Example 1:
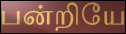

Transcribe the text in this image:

பன்றியே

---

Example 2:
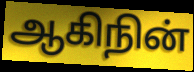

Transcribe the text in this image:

ஆகிநின்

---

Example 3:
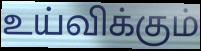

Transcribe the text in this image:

உய்விக்கும்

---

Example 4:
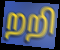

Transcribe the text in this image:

றறி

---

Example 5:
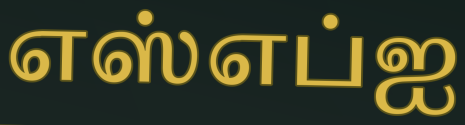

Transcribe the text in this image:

எஸ்எப்ஐ